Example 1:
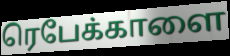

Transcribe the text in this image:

ரெபேக்காளை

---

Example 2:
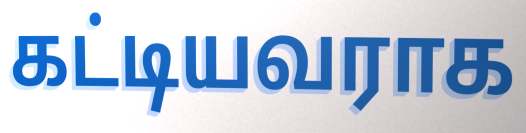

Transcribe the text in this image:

கட்டியவராக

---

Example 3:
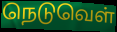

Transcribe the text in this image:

நெடுவெள்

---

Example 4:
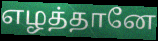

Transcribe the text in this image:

எழத்தானே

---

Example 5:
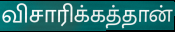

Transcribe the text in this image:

விசாரிக்கத்தான்